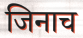
जिनाच